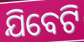
ଯିବେଟି